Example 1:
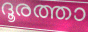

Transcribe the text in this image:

ദൂരത്താ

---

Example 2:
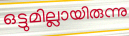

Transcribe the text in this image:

ഒട്ടുമില്ലായിരുന്നു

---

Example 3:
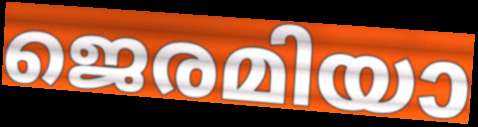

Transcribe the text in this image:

ജെരമിയാ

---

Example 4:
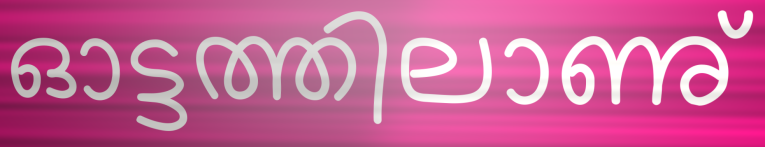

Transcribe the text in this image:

ഓട്ടത്തിലാണു്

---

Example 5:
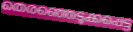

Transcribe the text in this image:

തെരഞ്ഞെടുക്കപ്പെട്ട